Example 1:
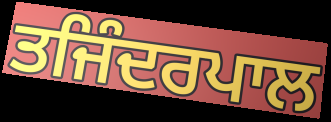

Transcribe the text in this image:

ਤਜਿੰਦਰਪਾਲ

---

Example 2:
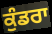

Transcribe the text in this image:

ਕੁੰਡਰਾ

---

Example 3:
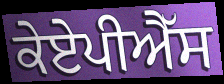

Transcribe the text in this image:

ਕੇਏਪੀਐੱਸ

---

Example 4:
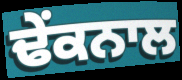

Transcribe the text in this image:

ਢੇਂਕਨਾਲ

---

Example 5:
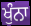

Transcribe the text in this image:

ਖੁੰਨਾ